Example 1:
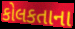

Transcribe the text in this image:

કોલકતાના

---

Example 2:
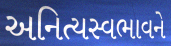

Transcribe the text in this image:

અનિત્યસ્વભાવને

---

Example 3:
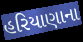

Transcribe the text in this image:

હરિયાણાના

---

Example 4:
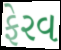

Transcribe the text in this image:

ફેરવ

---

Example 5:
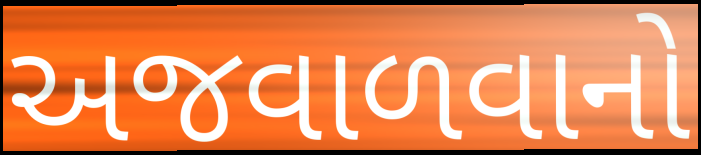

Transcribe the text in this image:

અજવાળવાનો